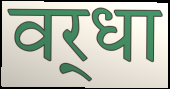
वर्धा